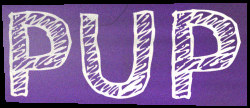
PUP